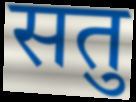
सतु